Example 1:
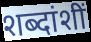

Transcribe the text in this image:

शब्दांशीं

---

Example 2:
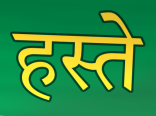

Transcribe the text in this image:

हस्ते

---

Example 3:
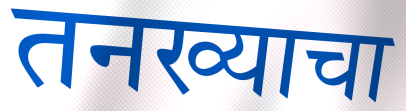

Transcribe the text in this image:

तनख्याचा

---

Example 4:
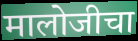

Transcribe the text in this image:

मालोजीचा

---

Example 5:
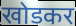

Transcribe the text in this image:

खोडकर